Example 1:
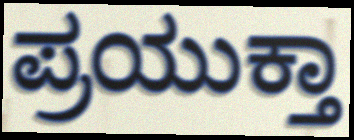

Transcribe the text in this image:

ಪ್ರಯುಕ್ತಾ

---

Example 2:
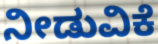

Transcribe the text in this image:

ನೀಡುವಿಕೆ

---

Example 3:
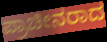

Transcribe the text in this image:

ಪ್ರಾಚೀನರಾದ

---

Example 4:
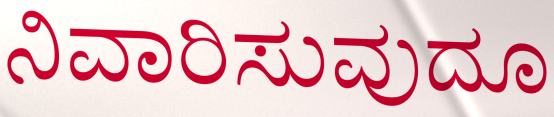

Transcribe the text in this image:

ನಿವಾರಿಸುವುದೂ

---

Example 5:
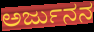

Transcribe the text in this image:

ಅರ್ಜುನನ